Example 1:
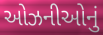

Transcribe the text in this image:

ઓઝનીઓનું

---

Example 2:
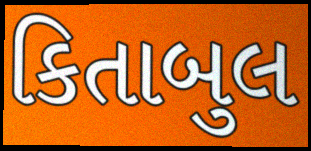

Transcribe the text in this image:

કિતાબુલ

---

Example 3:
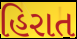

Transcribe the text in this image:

હિરાત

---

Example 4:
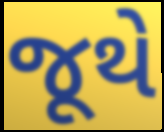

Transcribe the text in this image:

જૂથે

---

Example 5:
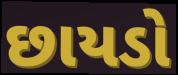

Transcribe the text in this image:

છાયડો